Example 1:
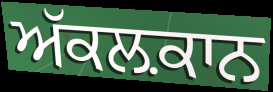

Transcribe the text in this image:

ਅੱਕਲ਼ਕਾਨ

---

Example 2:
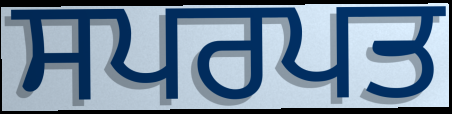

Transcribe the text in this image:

ਸਪਰਪਤ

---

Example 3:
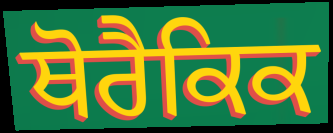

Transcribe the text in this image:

ਥੋਰੈਕਿਕ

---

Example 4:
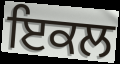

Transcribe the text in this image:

ਇਕਲ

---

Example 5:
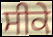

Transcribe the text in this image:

ਸੀਕੇ